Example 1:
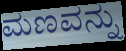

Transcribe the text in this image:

ಮಣವನ್ನು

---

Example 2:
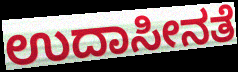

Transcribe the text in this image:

ಉದಾಸೀನತೆ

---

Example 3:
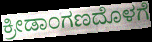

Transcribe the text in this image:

ಕ್ರೀಡಾಂಗಣದೊಳಗೆ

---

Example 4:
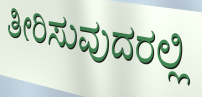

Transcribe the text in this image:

ತೀರಿಸುವುದರಲ್ಲಿ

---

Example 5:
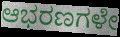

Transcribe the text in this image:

ಆಭರಣಗಳೇ